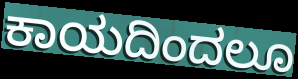
ಕಾಯದಿಂದಲೂ